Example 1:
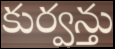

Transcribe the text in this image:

కుర్వన్తు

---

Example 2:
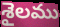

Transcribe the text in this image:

శైలము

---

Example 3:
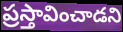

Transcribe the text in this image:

ప్రస్తావించాడని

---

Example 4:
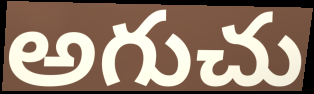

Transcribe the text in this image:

అగుచు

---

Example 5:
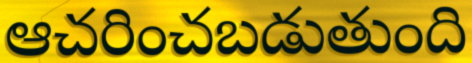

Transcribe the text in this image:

ఆచరించబడుతుంది